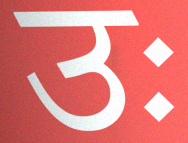
उः